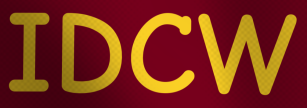
IDCW